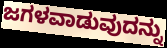
ಜಗಳವಾಡುವುದನ್ನು